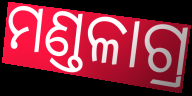
ମଣ୍ଡଳାଗ୍ର